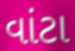
વાંટા